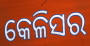
କେଳିସର